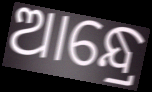
ଆନ୍ଧ୍ରେ